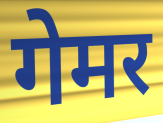
गेमर